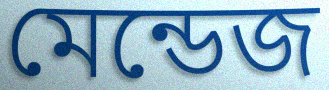
মেন্ডেজ